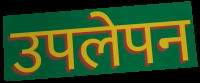
उपलेपन